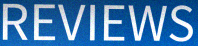
REVIEWS